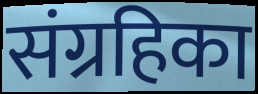
संग्रहिका